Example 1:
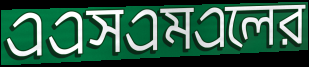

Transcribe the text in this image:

এএসএমএলের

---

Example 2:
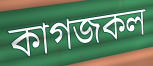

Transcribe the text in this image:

কাগজকল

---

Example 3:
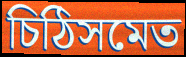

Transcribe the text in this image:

চিঠিসমেত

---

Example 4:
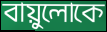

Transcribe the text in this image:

বায়ুলোকে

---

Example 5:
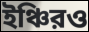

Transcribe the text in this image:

ইঞ্চিরও